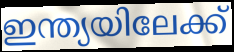
ഇന്ത്യയിലേക്ക്